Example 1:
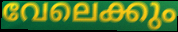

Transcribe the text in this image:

വേലെക്കും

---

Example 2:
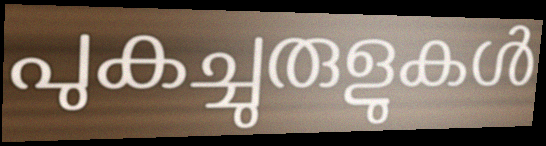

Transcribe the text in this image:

പുകച്ചുരുളുകൾ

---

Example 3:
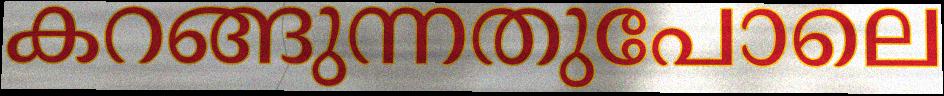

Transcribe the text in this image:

കറങ്ങുന്നതുപോലെ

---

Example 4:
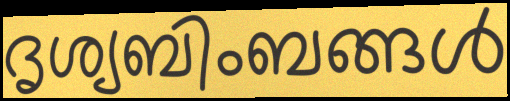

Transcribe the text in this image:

ദൃശ്യബിംബങ്ങൾ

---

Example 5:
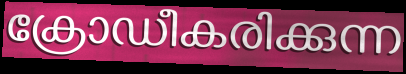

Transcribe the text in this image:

ക്രോഡീകരിക്കുന്ന